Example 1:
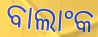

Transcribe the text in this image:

ବାଲାଂକ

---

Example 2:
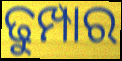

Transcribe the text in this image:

ଢୁମ୍ପାର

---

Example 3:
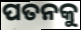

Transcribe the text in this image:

ପତନକୁ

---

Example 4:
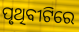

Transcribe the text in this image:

ପୃଥିବୀଟିରେ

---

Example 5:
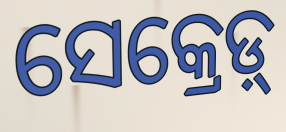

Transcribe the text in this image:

ସେକ୍ରେଡ଼୍